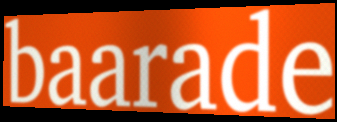
baarade